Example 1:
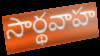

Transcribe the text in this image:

సార్థవాహ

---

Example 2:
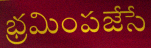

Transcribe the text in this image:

భ్రమింపజేసే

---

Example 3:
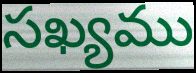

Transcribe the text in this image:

సఖ్యము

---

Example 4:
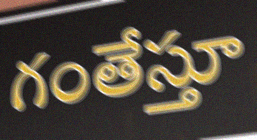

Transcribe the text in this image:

గంతేస్తూ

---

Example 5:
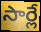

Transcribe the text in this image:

సార్లే